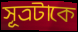
সূত্রটাকে